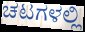
ಚಟಗಳಲ್ಲಿ